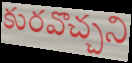
కురవొచ్చని